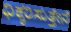
ಧಿಕ್ಕರಿಸುತ್ತೇನೆ